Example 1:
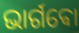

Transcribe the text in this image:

ଭାର୍ଗଵୋ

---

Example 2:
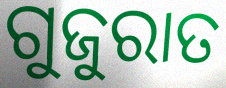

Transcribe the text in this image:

ଗୁଜୁରାତ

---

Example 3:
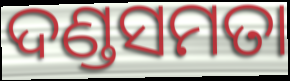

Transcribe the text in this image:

ଦଣ୍ଡସମତା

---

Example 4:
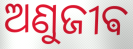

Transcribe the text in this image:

ଅଣୁଜୀଵ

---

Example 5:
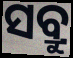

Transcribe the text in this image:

ସବ୍ରୁ